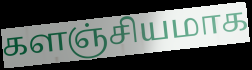
களஞ்சியமாக